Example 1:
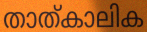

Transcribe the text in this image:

താത്കാലിക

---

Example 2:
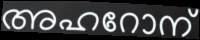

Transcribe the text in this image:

അഹറോന്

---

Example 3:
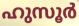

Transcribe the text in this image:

ഹുസൂർ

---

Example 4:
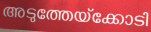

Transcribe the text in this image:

അടുത്തേയ്‌ക്കോടി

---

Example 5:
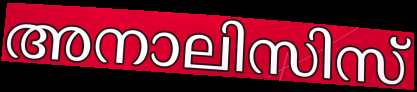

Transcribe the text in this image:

അനാലിസിസ്